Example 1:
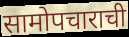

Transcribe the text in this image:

सामोपचाराची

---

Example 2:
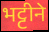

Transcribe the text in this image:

भट्टीने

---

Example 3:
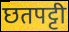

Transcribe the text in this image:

छतपट्टी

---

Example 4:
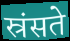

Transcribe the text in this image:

स्रंसते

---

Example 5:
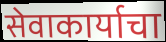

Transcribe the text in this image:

सेवाकार्याचा